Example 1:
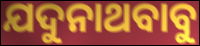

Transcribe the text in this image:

ଯଦୁନାଥବାବୁ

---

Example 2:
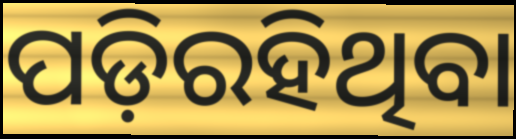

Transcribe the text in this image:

ପଡ଼ିରହିଥିବା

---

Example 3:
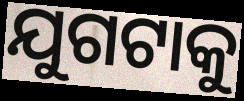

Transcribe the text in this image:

ଯୁଗଟାକୁ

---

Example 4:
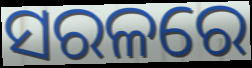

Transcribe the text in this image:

ସରଳରେ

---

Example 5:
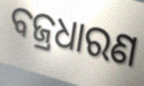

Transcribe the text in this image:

ବଜ୍ରଧାରଣ